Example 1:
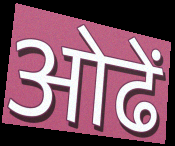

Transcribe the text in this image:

ओढें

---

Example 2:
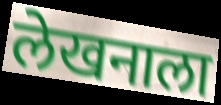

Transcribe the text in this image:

लेखनाला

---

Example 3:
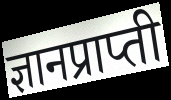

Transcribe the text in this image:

ज्ञानप्राप्ती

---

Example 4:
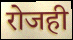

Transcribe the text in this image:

रोजही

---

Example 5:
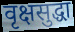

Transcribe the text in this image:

वृक्षसुद्धा